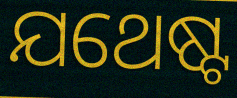
ଯଥେଷ୍ଟ